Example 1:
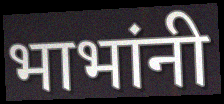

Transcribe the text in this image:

भाभांनी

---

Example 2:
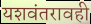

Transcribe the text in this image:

यशवंतरावही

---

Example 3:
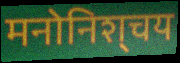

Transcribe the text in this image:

मनोनिश्चय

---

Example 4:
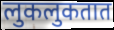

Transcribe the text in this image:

लुकलुकतात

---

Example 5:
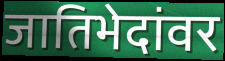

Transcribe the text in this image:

जातिभेदांवर